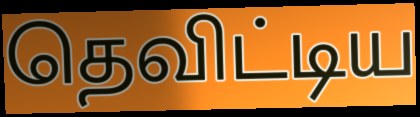
தெவிட்டிய